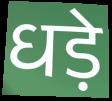
धड़े